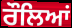
ਰੌਲਿਆਂ